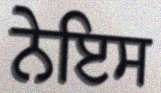
ਨੇਇਸ